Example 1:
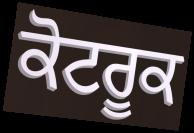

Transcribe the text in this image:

ਕੋਟਰੂਕ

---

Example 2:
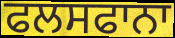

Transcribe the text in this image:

ਫਲਸਫਾਨਾ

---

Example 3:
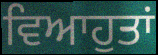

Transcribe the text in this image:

ਵਿਆਹੁਤਾਂ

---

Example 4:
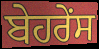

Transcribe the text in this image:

ਬੇਹਰੇਂਸ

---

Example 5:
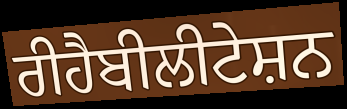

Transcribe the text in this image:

ਰੀਹੈਬੀਲੀਟੇਸ਼ਨ